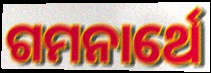
ଗମନାର୍ଥେ